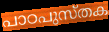
പാഠപുസ്തക